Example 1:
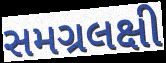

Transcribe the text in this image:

સમગ્રલક્ષી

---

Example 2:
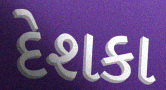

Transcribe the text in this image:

દેશકા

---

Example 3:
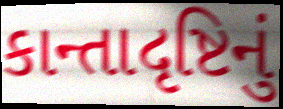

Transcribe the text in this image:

કાન્તાદૃષ્ટિનું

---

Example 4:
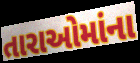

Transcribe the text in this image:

તારાઓમાંના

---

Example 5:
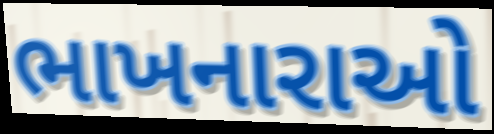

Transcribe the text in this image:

ભાખનારાઓ